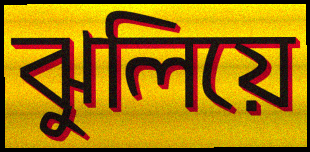
ঝুলিয়ে